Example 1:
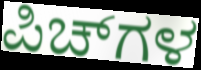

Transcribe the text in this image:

ಪಿಚ್‌ಗಳ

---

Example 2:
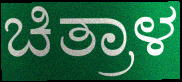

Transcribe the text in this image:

ಚಿತ್ರಾಳ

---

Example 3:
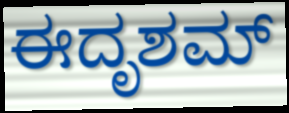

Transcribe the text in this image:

ಈದೃಶಮ್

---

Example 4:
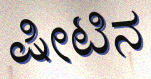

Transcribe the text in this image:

ಷೀಟಿನ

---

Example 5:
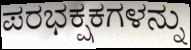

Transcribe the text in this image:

ಪರಭಕ್ಷಕಗಳನ್ನು